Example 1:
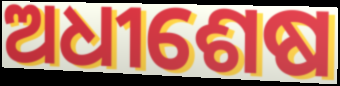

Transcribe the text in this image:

ଅଧୀଶେଷ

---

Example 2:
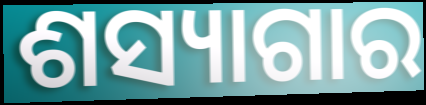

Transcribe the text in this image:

ଶସ୍ୟାଗାର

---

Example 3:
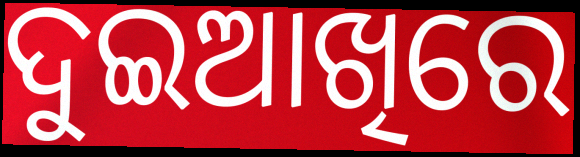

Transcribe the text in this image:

ଦୁଇଆଖିରେ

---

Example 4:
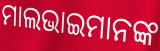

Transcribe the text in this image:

ମାଲଭାଇମାନଙ୍କ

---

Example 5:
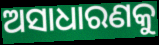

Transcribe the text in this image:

ଅସାଧାରଣକୁ